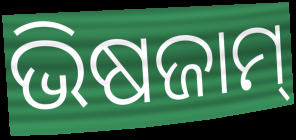
ଭିଷଜାମ୍